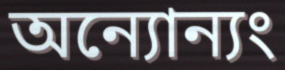
অন্যোন্যং